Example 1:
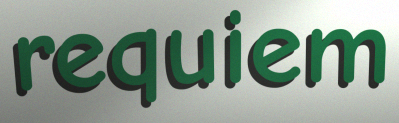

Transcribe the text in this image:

requiem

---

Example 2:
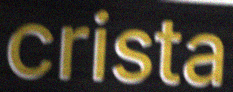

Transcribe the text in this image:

crista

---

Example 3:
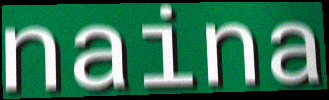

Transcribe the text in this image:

naina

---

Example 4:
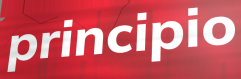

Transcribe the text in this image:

principio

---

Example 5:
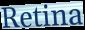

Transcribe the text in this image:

Retina